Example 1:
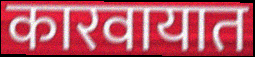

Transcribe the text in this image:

कारवायात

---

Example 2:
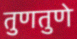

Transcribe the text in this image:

तुणतुणे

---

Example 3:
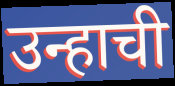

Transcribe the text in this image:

उन्हाची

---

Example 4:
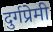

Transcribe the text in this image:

दुर्गप्रेमी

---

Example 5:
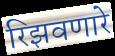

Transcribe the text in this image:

रिझवणारे